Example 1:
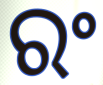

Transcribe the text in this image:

ରଂ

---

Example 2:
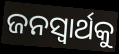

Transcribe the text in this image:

ଜନସ୍ବାର୍ଥକୁ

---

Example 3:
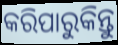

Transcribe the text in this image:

କରିପାରୁକିନ୍ତୁ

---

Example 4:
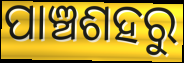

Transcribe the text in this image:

ପାଞ୍ଚଶହରୁ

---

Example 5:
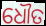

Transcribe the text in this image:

ଧୌତ